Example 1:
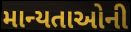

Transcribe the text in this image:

માન્યતાઓની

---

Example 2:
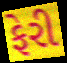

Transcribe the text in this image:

ફેરી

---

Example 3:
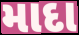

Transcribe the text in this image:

માદા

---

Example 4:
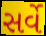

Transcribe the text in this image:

સર્વે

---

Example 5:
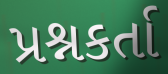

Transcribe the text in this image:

પ્રશ્નકર્તા